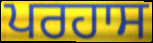
ਪਰਹਾਸ